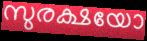
സുരക്ഷയോ